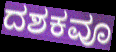
ದಶಕವೂ